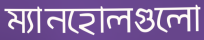
ম্যানহোলগুলো